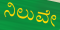
ನಿಲುವೇ